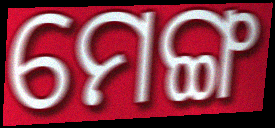
ମେଙ୍ଗ